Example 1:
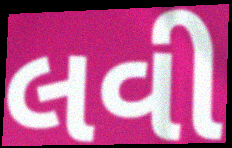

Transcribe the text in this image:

લવી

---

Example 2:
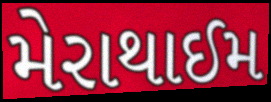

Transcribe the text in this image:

મેરાથાઈમ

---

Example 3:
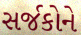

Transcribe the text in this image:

સર્જકોને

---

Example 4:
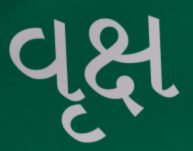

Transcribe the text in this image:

વૃક્ષ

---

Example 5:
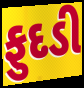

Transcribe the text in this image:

ફુદડી